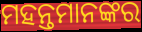
ମହନ୍ତମାନଙ୍କର